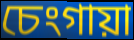
চেংগায়া